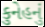
કુનેહનું